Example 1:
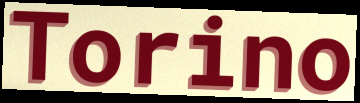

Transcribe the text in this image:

Torino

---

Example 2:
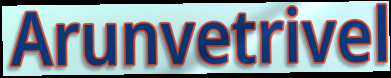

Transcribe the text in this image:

Arunvetrivel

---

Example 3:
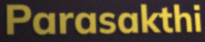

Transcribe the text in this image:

Parasakthi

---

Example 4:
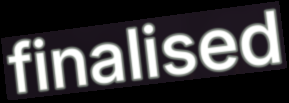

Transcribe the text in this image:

finalised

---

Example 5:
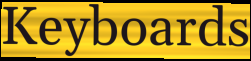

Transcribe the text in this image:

Keyboards